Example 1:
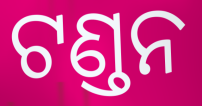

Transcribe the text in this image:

ଟଣ୍ଡନ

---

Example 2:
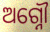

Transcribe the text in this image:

ଅଗ୍ନୌ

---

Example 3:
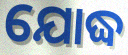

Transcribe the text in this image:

ଯୋଦ୍ଧ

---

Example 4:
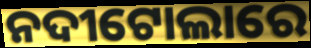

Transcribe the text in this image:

ନଦୀଟୋଲାରେ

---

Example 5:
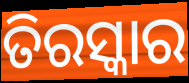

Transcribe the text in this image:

ତିରସ୍କାର